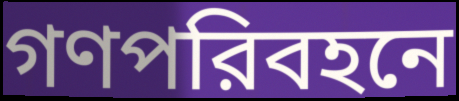
গণপরিবহনে